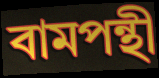
বামপন্থী